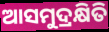
ଆସମୁଦ୍ରକ୍ଷିତି